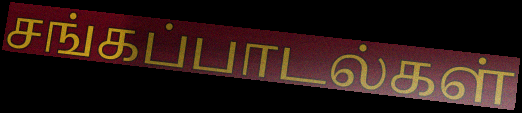
சங்கப்பாடல்கள்